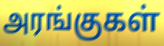
அரங்குகள்